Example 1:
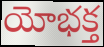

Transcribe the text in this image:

యోభక్త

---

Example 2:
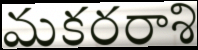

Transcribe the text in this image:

మకరరాశి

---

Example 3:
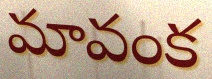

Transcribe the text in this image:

మావంక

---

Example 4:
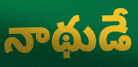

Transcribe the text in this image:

నాథుడే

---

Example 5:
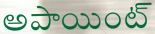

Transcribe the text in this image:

అపాయింట్